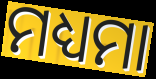
ମଧ୍ୟମା